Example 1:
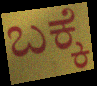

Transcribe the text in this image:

ಬಕ್ಕೆ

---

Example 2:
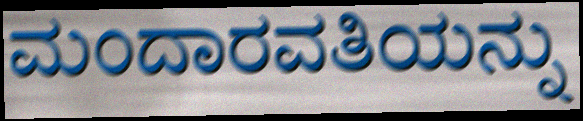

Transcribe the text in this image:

ಮಂದಾರವತಿಯನ್ನು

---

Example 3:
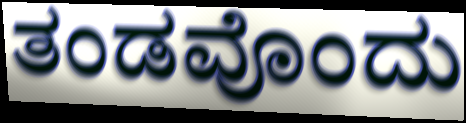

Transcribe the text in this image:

ತಂಡವೊಂದು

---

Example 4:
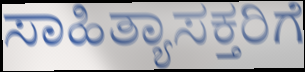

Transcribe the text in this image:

ಸಾಹಿತ್ಯಾಸಕ್ತರಿಗೆ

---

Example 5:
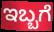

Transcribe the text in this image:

ಇಬ್ಬಗೆ